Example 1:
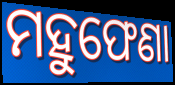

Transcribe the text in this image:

ମହୁଫେଣା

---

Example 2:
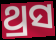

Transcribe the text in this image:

ଥ୍ରସ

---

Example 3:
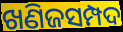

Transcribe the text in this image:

ଖଣିଜସମ୍ପଦ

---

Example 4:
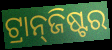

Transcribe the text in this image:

ଟ୍ରାନ୍‍ଜିଷ୍ଟର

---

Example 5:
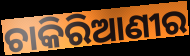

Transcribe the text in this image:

ଚାକିରିଆଣୀର